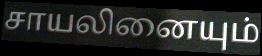
சாயலினையும்